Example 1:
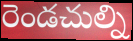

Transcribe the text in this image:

రెండచుల్ని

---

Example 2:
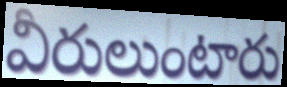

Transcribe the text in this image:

వీరులుంటారు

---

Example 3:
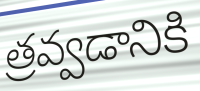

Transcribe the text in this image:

త్రవ్వడానికి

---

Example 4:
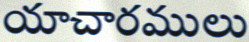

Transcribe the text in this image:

యాచారములు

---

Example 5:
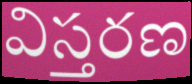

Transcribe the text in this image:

విస్తరణ